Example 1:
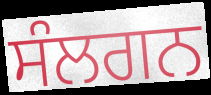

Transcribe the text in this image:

ਸੰਲਗਨ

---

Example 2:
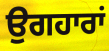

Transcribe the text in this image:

ਉਗਹਾਰਾਂ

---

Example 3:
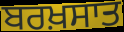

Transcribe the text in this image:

ਬਰਖ਼ਸਾਤ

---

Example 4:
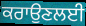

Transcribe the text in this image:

ਕਰਾਉਣਲਈ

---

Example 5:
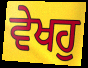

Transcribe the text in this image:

ਵੇਖਹੁ